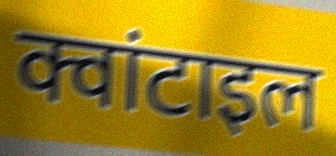
क्वांटाइल